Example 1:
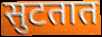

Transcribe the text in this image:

सुटतात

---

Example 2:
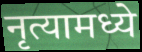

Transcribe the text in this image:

नृत्यामध्ये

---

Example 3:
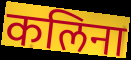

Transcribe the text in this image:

कलिना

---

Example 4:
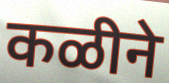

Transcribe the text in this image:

कळीने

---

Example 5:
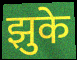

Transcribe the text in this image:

झुके